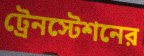
ট্রেনস্টেশনের